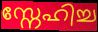
സ്നേഹിച്ച